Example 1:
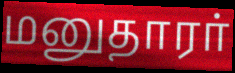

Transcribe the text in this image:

மனுதாரர்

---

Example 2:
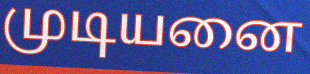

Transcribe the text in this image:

முடியனை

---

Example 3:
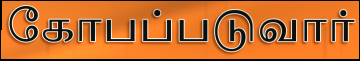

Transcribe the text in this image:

கோபப்படுவார்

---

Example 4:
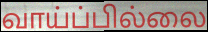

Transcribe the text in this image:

வாய்ப்பில்லை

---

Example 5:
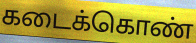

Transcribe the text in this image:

கடைக்கொண்